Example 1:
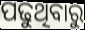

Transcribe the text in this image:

ପଢୁଥିବାରୁ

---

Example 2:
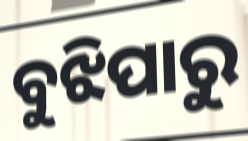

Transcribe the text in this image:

ବୁଝିପାରୁ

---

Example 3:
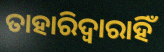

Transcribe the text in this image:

ତାହାରିଦ୍ୱାରାହିଁ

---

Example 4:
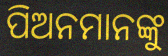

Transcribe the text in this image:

ପିଅନମାନଙ୍କୁ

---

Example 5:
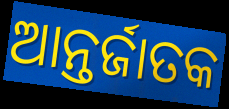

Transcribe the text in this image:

ଆନ୍ତର୍ଜାତକ